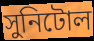
সুনিটোল